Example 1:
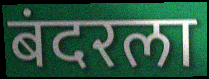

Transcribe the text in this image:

बंदरला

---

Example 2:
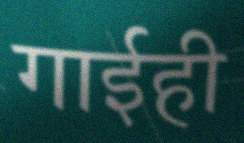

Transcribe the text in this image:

गाईही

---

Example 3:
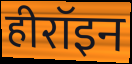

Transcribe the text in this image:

हीरॉइन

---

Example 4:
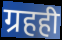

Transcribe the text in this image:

ग्रहही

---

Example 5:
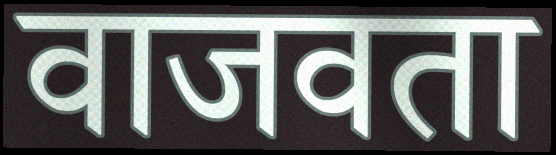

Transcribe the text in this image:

वाजवता